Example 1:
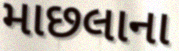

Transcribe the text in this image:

માછલાના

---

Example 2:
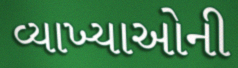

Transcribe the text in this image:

વ્યાખ્યાઓની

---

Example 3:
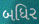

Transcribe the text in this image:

બધિર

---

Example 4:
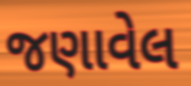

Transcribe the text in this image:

જણાવેલ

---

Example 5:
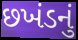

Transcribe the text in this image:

છખંડનું